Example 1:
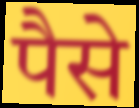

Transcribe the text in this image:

पैसे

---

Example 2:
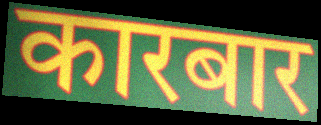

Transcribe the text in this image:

कारबार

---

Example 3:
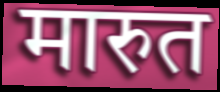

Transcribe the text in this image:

मारुत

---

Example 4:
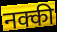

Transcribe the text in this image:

नक्की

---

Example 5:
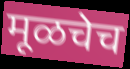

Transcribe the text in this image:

मूळचेच